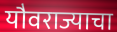
यौवराज्याचा